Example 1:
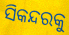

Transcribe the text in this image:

ସିକନ୍ଦରକୁ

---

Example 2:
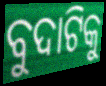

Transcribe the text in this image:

ବୁଦାଟିକୁ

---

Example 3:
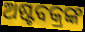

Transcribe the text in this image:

ଅଷ୍ଟବକ୍ରଙ୍କ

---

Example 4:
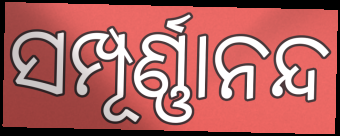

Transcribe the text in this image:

ସମ୍ପୂର୍ଣ୍ଣାନନ୍ଦ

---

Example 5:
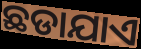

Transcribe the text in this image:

ଛଡାଯାଏ